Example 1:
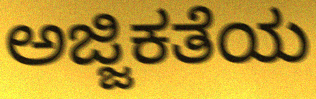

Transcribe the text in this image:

ಅಜ್ಜಿಕತೆಯ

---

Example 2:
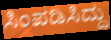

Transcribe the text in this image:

ಸಿಂಪಡಿಸಿದ್ದು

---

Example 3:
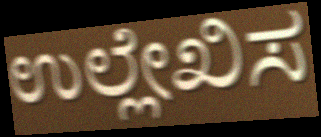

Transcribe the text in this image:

ಉಲ್ಲೇಖಿಸ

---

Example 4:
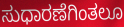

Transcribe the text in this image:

ಸುಧಾರಣೆಗಿಂತಲೂ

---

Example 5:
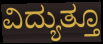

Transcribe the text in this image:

ವಿದ್ಯುತ್ತೂ